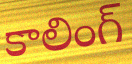
కాలింగ్